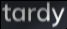
tardy